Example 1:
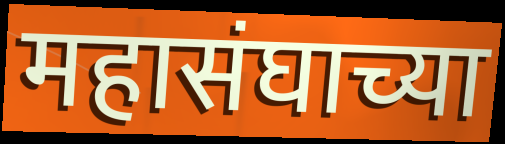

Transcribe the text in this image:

महासंघाच्या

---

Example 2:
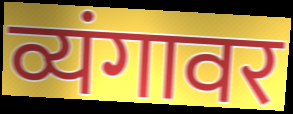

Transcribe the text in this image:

व्यंगावर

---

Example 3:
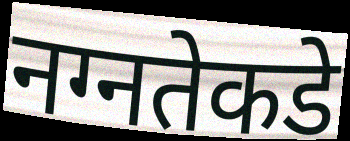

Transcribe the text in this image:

नग्नतेकडे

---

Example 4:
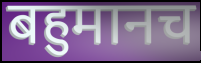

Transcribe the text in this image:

बहुमानच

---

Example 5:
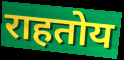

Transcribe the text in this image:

राहतोय